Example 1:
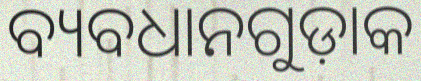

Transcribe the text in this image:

ବ୍ୟବଧାନଗୁଡ଼ାକ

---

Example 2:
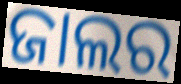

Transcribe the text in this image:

ଜାଲର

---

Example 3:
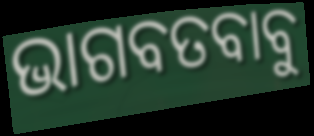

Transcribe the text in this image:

ଭାଗବତବାବୁ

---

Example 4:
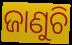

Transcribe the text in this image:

ଜାଣୁଚି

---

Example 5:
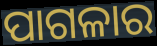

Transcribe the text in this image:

ପାଗଳାର